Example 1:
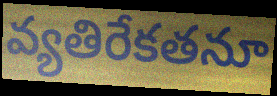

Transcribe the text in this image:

వ్యతిరేకతనూ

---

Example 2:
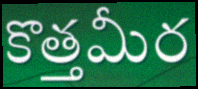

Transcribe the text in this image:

కొత్తమీర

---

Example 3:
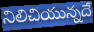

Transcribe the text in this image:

నిలిచియున్నదే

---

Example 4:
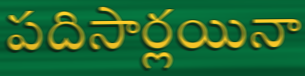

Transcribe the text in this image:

పదిసార్లయినా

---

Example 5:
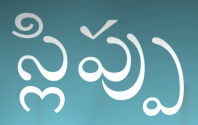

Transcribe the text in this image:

స్లిప్పు